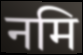
नमि